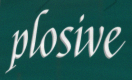
plosive